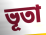
ভূতা